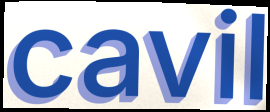
cavil